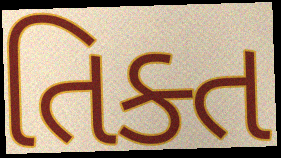
તિક્ત